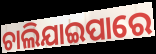
ଚାଲିଯାଇପାରେ